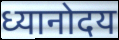
ध्यानोदय